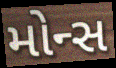
મોન્સ